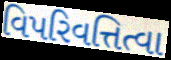
વિપરિવત્તિત્વા